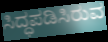
ಸಿದ್ಧಪಡಿಸಿರುವ